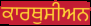
ਕਾਰਥੁਸੀਅਨ